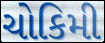
ચોકિમી